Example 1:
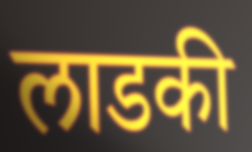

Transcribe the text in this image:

लाडकी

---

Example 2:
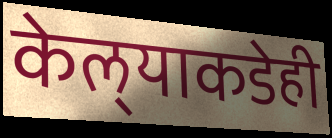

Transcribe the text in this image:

केल्याकडेही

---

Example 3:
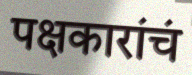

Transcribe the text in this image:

पक्षकारांचं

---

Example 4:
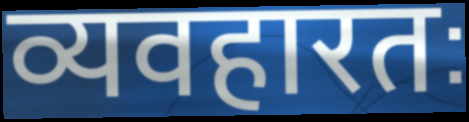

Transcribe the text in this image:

व्यवहारतः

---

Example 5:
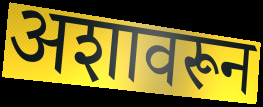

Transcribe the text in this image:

अशावरून